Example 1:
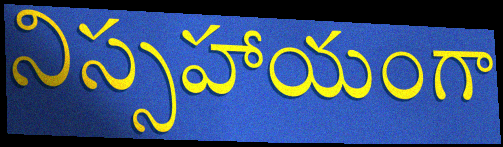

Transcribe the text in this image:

నిస్సహాయంగా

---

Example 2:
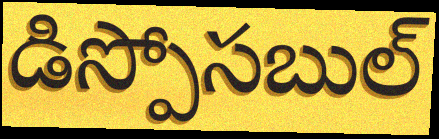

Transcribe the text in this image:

డిస్పోసబుల్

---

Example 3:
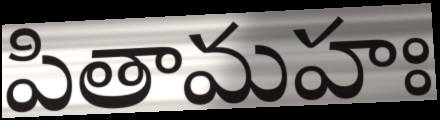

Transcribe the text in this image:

పితామహః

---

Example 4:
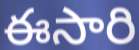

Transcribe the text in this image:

ఈసారి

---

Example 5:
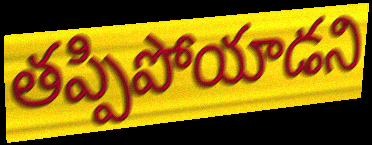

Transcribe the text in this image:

తప్పిపోయాడని